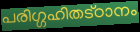
പരിഗ്ഗഹിതട്ഠാനം